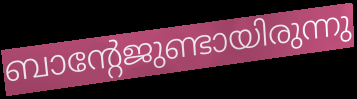
ബാന്റേജുണ്ടായിരുന്നു